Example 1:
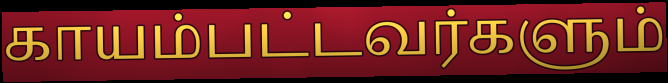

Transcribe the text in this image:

காயம்பட்டவர்களும்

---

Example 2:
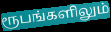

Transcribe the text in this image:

ரூபங்களிலும்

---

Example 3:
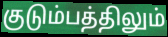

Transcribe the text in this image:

குடும்பத்திலும்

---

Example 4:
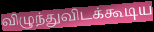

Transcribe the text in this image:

விழுந்துவிடக்கூடிய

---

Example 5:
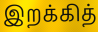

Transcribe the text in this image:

இறக்கித்